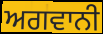
ਅਗਵਾਨੀ